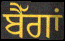
ਬੈੱਗਾਂ